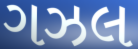
ગઝલ